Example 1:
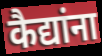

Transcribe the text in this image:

कैद्यांना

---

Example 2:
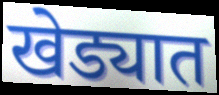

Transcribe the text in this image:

खेड्यात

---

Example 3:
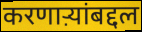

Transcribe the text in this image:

करणाऱ्‍यांबद्दल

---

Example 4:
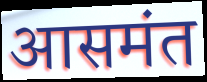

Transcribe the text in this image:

आसमंत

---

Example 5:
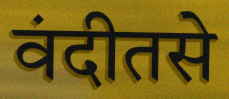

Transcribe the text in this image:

वंदीतसे